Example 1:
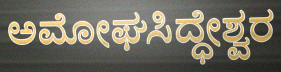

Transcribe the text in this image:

ಅಮೋಘಸಿದ್ಧೇಶ್ವರ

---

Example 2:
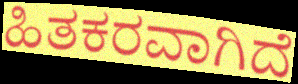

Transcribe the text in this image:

ಹಿತಕರವಾಗಿದೆ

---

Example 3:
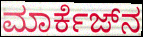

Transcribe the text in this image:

ಮಾರ್ಕೆಜ್‌ನ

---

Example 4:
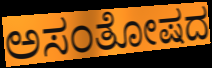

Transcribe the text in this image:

ಅಸಂತೋಷದ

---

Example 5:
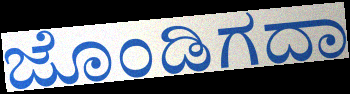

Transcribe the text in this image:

ಜೊಂಡಿಗದಾ